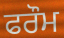
ਫਰੌਮ